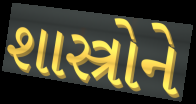
શાસ્ત્રોને